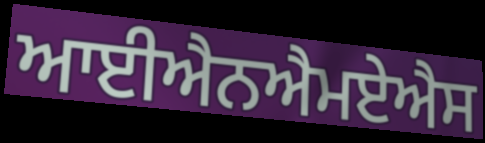
ਆਈਐਨਐਮਏਐਸ